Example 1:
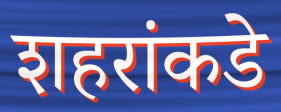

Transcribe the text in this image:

शहरांकडे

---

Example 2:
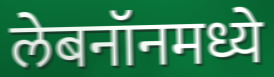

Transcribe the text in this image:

लेबनॉनमध्ये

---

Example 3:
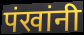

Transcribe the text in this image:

पंखांनी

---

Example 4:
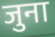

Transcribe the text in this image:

जुना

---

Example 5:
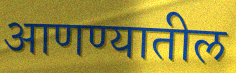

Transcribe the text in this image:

आणण्यातील